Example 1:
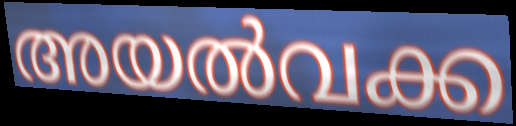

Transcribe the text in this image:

അയൽവക്ക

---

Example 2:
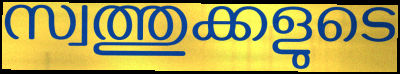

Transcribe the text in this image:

സ്വത്തുക്കളുടെ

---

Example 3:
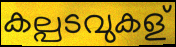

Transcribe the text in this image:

കല്പടവുകള്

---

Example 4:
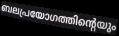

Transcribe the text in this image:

ബലപ്രയോഗത്തിന്റെയും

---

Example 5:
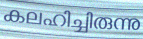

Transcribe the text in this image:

കലഹിച്ചിരുന്നു